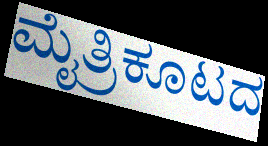
ಮೈತ್ರಿಕೂಟದ